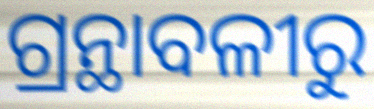
ଗ୍ରନ୍ଥାବଳୀରୁ